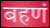
बहणं